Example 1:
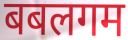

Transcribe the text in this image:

बबलगम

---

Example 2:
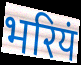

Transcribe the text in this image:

भरियं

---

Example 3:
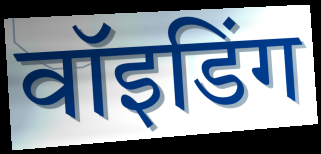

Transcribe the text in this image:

वॉइडिंग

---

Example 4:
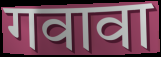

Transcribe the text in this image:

गवावा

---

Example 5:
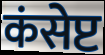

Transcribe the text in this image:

कंसेप्ट